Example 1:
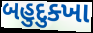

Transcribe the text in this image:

બહુદુક્ખા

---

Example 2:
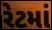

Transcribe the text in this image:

રેટમાં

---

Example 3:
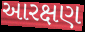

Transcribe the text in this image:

આરક્ષણ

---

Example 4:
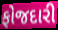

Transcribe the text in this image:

ફોજદારી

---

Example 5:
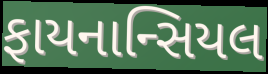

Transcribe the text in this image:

ફાયનાન્સિયલ